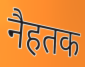
नैहतक